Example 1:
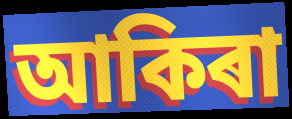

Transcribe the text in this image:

আকিৰা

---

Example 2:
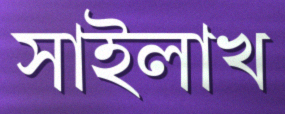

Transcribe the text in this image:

সাইলাখ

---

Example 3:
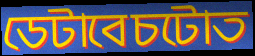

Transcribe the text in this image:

ডেটাবেচটোত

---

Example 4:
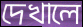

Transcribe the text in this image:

দেখালে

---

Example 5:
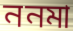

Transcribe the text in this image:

ননমা